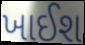
ખાઈશ